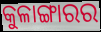
କୁଳାଙ୍ଗାରର